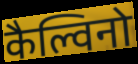
कैल्विनो